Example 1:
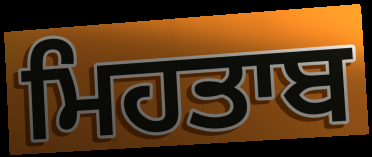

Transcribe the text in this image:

ਮਿਹਤਾਬ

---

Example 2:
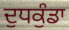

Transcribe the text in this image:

ਦੁਧਕੁੰਡਾ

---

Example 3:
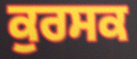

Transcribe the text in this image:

ਕੁਰਸਕ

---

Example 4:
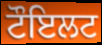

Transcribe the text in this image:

ਟੌਇਲਟ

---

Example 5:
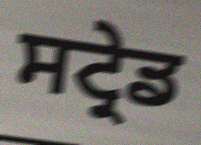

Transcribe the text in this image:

ਸਟ੍ਰੇਡ